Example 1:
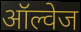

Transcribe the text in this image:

ऑल्वेज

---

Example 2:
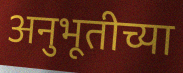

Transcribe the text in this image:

अनुभूतीच्या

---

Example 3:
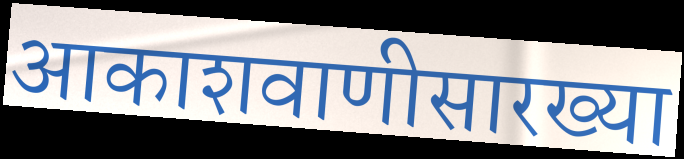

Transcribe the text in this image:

आकाशवाणीसारख्या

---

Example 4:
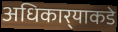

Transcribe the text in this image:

अधिकार्‍याकडे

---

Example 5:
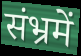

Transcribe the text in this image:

संभ्रमें